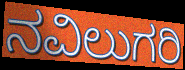
ನವಿಲುಗರಿ